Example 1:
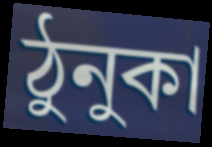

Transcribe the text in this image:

ঠুনুকা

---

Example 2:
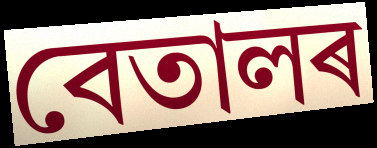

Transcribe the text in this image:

বেতালৰ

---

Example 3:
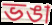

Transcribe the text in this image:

ভঙা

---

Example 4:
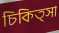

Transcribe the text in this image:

চিকিত্সা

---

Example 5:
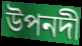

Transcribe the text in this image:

উপনদী